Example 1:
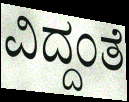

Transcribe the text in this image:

ವಿದ್ದಂತೆ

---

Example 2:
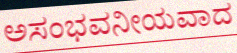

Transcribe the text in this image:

ಅಸಂಭವನೀಯವಾದ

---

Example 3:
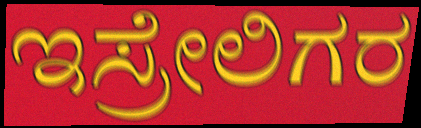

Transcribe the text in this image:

ಇಸ್ರೇಲಿಗರ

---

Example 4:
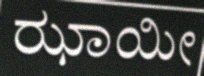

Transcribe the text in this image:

ಝಾಯೀ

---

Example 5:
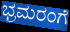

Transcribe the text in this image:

ಭ್ರಮರಂಗೆ